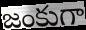
జంకుగా